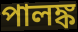
পালঙ্ক